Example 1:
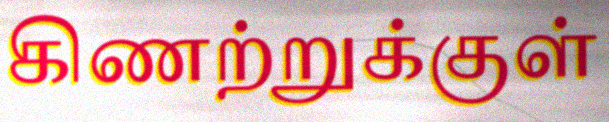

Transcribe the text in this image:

கிணற்றுக்குள்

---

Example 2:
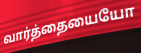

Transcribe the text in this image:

வார்த்தையையோ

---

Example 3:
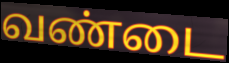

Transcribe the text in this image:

வண்டை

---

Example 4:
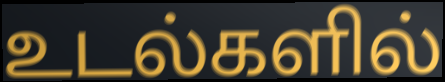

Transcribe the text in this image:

உடல்களில்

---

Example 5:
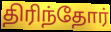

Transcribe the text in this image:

திரிந்தோர்